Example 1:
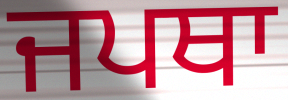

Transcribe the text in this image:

ਜਪਥਾ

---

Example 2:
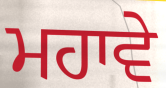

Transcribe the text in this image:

ਮਹਾਵੇ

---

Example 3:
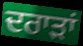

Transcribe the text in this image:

ਦਰਾੜਾਂ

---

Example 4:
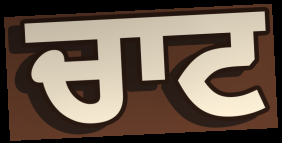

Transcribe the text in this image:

ਚਾਟ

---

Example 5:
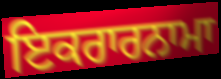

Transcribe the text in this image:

ਇਕਰਾਰਨਾਮਾ